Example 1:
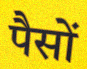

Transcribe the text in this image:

पैसों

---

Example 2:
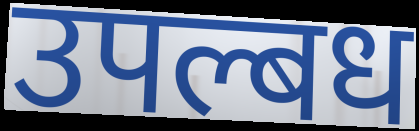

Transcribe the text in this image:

उपल्‍बध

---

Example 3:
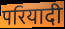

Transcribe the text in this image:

परियादी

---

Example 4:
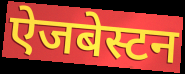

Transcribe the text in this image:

ऐजबेस्टन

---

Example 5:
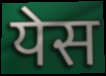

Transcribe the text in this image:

येस